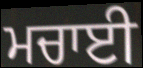
ਮਚਾਈ